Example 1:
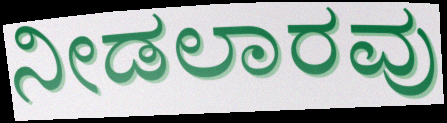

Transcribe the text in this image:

ನೀಡಲಾರವು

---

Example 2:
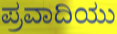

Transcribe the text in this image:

ಪ್ರವಾದಿಯು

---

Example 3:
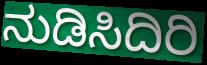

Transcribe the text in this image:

ನುಡಿಸಿದಿರಿ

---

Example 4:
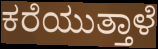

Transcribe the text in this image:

ಕರೆಯುತ್ತಾಳೆ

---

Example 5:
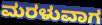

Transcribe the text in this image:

ಮರಳುವಾಗ